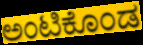
ಅಂಟಿಕೊಂಡ